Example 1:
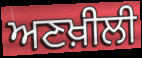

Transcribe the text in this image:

ਅਣਖ਼ੀਲੀ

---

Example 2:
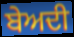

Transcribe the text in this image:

ਬੇਅਦੀ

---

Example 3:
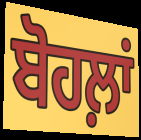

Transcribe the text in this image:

ਬੋਹਲ਼ਾਂ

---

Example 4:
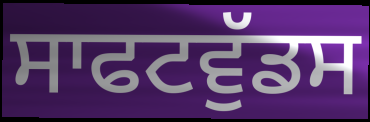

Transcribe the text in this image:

ਸਾਫਟਵੁੱਡਸ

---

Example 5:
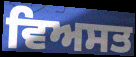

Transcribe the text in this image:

ਵਿਅਸਤ